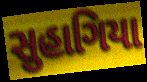
સુહાગિયા